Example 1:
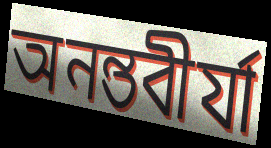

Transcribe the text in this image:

অনন্তবীর্যা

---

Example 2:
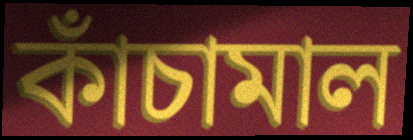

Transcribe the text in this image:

কাঁচামাল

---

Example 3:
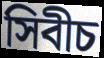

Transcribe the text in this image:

সিবীচ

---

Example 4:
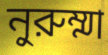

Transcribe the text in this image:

নুরুম্মা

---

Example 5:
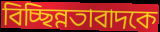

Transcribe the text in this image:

বিচ্ছিন্নতাবাদকে